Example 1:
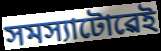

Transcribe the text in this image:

সমস্যাটোৱেই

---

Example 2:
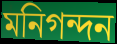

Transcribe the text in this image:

মনিগন্দন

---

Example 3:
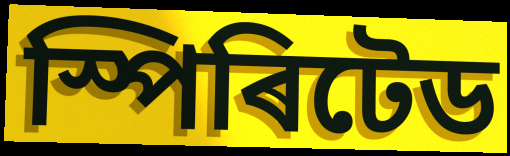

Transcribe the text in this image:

স্পিৰিটেড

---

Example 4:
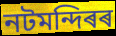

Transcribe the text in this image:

নটমন্দিৰৰ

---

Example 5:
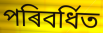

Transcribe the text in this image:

পৰিবৰ্ধিত